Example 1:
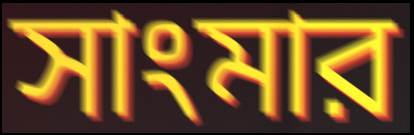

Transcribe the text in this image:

সাংমার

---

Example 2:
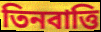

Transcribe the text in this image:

তিনবাত্তি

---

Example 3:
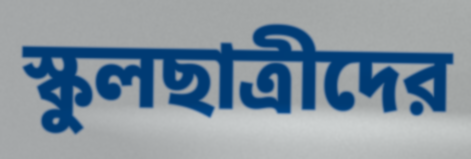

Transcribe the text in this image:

স্কুলছাত্রীদের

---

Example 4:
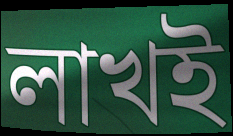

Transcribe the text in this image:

লাখই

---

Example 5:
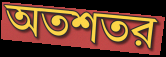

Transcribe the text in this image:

অতশতর